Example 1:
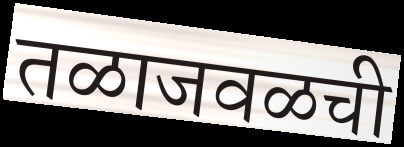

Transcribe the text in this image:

तळाजवळची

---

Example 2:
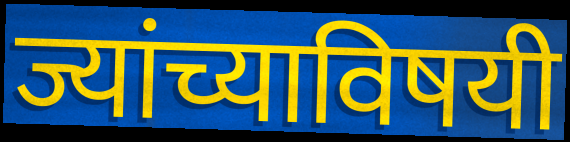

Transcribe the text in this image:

ज्यांच्याविषयी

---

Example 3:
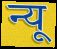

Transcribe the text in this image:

न्यू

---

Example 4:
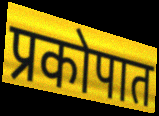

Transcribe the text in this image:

प्रकोपात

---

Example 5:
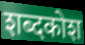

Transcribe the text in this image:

शब्दकोश